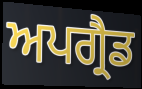
ਅਪਗ੍ਰੈਡ